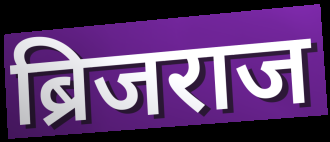
ब्रिजराज